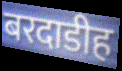
बरदाडीह